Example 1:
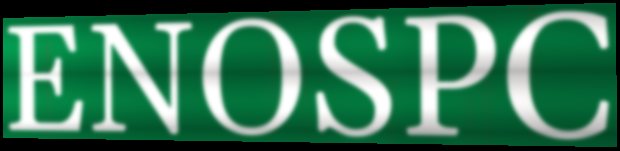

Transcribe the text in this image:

ENOSPC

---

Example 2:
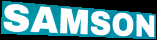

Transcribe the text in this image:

SAMSON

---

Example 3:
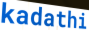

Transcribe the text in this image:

kadathi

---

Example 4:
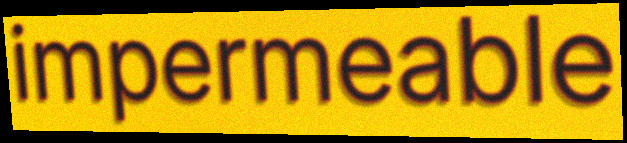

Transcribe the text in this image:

impermeable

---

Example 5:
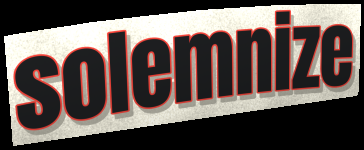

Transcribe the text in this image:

solemnize